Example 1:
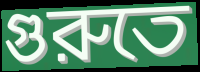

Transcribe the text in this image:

গুরুতে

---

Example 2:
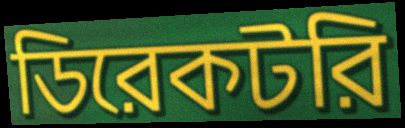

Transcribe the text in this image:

ডিরেকটরি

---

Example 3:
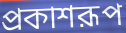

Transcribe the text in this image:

প্রকাশরূপ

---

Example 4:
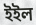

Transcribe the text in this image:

ইইল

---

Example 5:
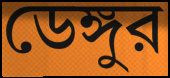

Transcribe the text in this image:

ডেঙ্গুর